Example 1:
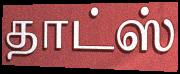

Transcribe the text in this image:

தாட்ஸ்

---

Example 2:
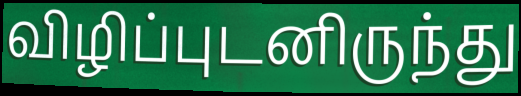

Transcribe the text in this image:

விழிப்புடனிருந்து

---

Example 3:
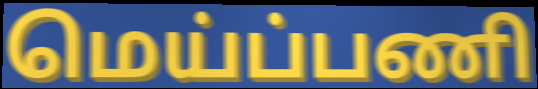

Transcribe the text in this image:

மெய்ப்பணி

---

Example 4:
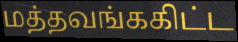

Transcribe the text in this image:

மத்தவங்ககிட்ட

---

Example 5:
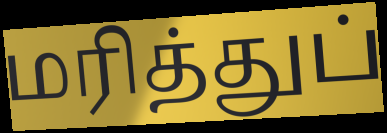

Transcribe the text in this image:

மரித்துப்